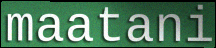
maatani